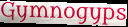
Gymnogyps